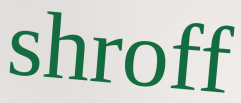
shroff